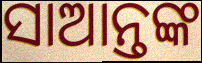
ସାଆନ୍ତଙ୍କ